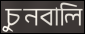
চুনবালি